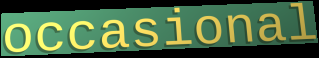
occasional